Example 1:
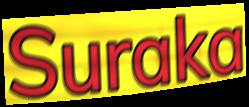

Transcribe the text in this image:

Suraka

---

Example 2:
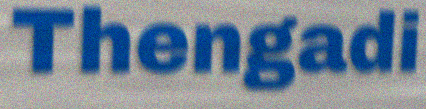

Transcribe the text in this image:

Thengadi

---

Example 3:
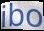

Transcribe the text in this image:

ibo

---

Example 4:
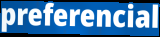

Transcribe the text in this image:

preferencial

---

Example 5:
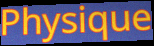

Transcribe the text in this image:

Physique